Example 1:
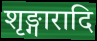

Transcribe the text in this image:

शृङ्गारादि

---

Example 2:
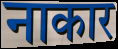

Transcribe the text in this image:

नाकार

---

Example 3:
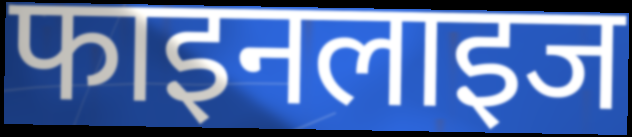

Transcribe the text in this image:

फाइनलाइज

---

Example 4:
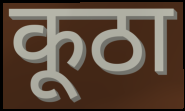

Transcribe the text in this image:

कूठा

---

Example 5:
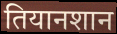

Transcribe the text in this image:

तियानशान